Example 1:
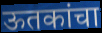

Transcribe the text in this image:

ऊतकांचा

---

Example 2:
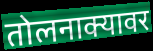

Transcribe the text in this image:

तोलनाक्यावर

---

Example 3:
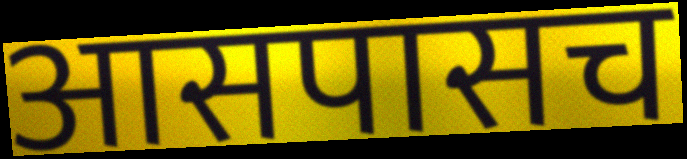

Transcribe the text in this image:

आसपासच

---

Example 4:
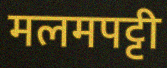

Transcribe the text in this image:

मलमपट्टी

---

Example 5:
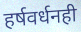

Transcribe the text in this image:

हर्षवर्धनही